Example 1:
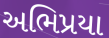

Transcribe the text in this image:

અભિપ્રયા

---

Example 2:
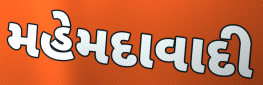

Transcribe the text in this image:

મહેમદાવાદી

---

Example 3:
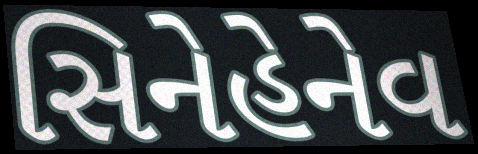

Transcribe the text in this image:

સિનેહેનેવ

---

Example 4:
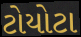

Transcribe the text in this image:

ટોયોટા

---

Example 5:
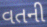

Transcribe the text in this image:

વતની